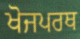
ਖੋਜਪਰਥ